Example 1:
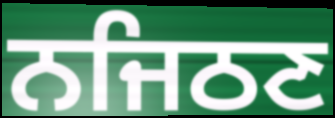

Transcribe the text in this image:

ਨਜਿਠਣ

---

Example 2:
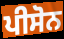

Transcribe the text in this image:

ਪੀਸੋਨ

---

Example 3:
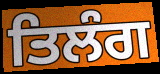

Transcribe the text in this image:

ਤਿਲੰਗ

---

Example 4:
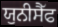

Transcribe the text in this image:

ਯੁਨੀਸੈੱਫ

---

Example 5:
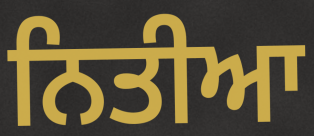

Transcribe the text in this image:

ਨਿਤੀਆ